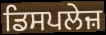
ਡਿਸਪਲੇਜ਼